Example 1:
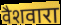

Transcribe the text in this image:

वैशवारा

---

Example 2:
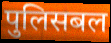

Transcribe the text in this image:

पुलिसबल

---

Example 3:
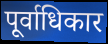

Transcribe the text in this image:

पूर्वाधिकार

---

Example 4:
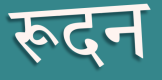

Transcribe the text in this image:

रूदन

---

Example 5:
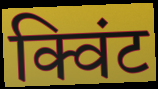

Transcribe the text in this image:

क्विंट